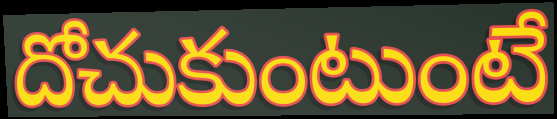
దోచుకుంటుంటే